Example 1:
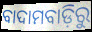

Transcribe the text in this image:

ବାଦାମବାଡ଼ିରୁ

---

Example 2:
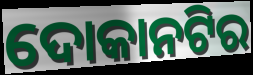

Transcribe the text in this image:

ଦୋକାନଟିର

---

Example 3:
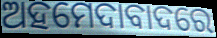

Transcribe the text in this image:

ଅହମେଦାବାଦରେ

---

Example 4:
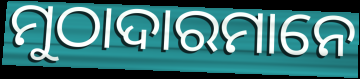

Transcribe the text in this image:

ମୁଠାଦାରମାନେ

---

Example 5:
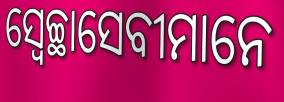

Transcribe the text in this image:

ସ୍ୱେଚ୍ଛାସେବୀମାନେ